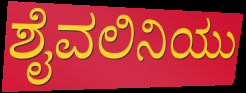
ಶೈವಲಿನಿಯು